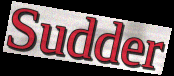
Sudder